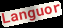
Languor